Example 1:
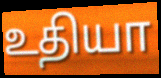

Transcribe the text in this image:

உதியா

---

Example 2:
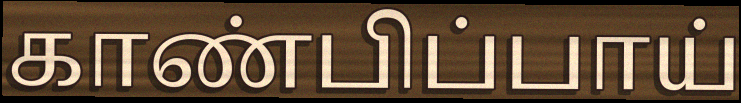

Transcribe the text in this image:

காண்பிப்பாய்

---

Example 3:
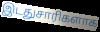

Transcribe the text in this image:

இடதுசாரிகளாக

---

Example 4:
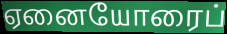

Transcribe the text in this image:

ஏனையோரைப்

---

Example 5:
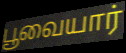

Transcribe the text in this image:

பூவையார்